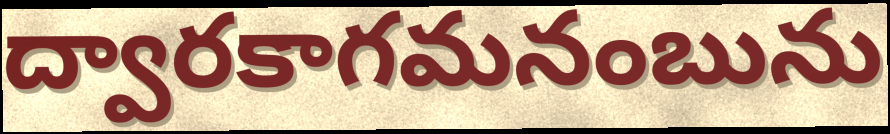
ద్వారకాగమనంబును